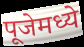
पूजेमध्ये